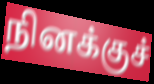
நினக்குச்